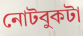
নোটবুকটা